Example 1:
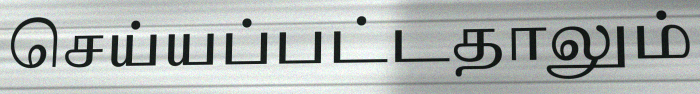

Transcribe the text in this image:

செய்யப்பட்டதாலும்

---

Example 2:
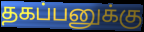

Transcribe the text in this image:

தகப்பனுக்கு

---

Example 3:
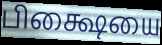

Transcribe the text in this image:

பிக்ஷையை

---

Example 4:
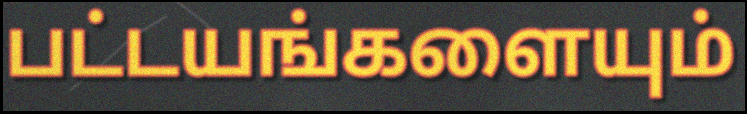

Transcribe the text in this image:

பட்டயங்களையும்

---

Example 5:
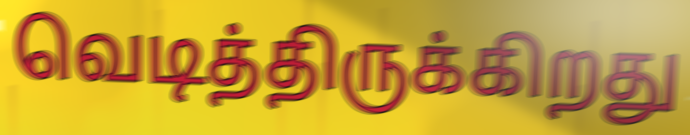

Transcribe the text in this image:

வெடித்திருக்கிறது